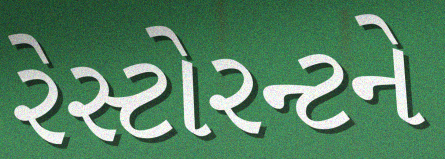
રેસ્ટોરન્ટને